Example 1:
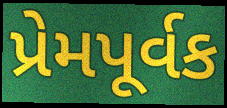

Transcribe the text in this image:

પ્રેમપૂર્વક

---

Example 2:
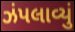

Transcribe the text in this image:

ઝંપલાવ્યું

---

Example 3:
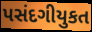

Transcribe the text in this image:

પસંદગીયુકત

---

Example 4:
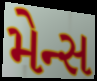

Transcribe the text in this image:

મેન્સ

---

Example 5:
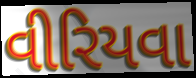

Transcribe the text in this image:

વીરિયવા